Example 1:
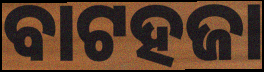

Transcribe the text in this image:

ବାଟହଜା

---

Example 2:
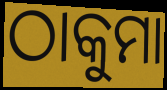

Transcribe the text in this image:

ଠାକୁମା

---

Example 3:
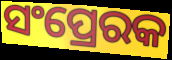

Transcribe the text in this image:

ସଂପ୍ରେରକ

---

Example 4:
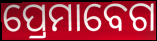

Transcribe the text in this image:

ପ୍ରେମାବେଗ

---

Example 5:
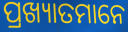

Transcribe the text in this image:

ପ୍ରଖ୍ୟାତମାନେ